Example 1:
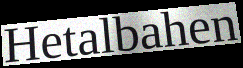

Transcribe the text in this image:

Hetalbahen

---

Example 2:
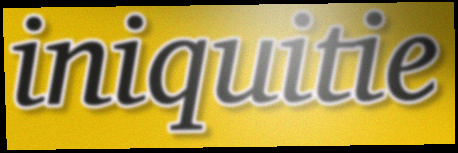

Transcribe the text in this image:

iniquitie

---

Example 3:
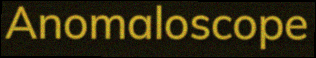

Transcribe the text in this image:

Anomaloscope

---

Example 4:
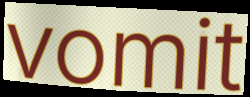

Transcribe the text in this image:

vomit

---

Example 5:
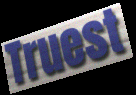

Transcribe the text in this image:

Truest